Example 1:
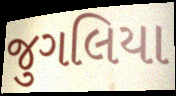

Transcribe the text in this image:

જુગલિયા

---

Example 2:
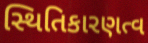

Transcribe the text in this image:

સ્થિતિકારણત્વ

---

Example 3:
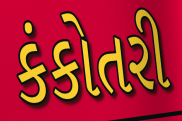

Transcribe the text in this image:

કંકોતરી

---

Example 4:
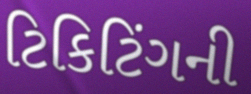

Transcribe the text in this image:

ટિકિટિંગની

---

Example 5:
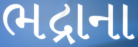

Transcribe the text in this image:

ભદ્રાના